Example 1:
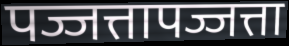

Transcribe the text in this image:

पज्जत्तापज्जत्ता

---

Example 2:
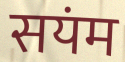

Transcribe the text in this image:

सयंम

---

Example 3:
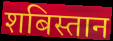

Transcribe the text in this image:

शबिस्तान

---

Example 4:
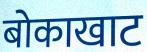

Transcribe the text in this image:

बोकाखाट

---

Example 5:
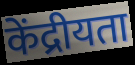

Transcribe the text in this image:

केंद्रीयता